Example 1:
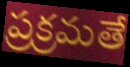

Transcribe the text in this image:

ప్రక్రమతే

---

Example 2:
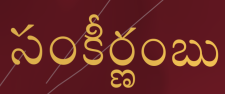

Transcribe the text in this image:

సంకీర్ణంబు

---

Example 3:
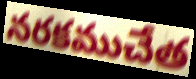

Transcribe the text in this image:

నరకముచేత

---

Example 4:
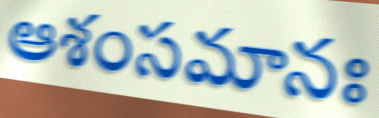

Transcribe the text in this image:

ఆశంసమానః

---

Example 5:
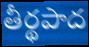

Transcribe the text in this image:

తీర్థపాద